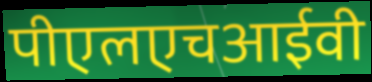
पीएलएचआईवी